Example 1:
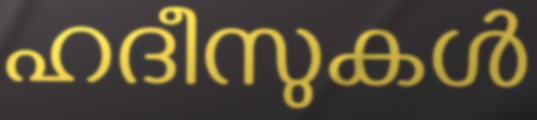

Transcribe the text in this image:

ഹദീസുകൾ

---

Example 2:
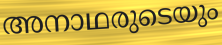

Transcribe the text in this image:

അനാഥരുടെയും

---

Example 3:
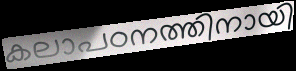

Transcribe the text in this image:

കലാപഠനത്തിനായി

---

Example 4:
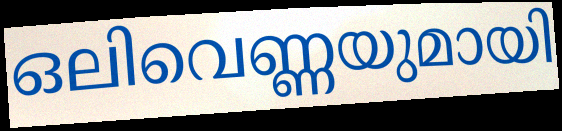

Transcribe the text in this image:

ഒലിവെണ്ണയുമായി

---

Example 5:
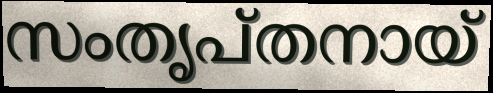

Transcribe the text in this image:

സംതൃപ്തനായ്